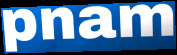
pnam